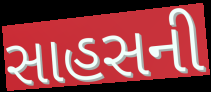
સાહસની